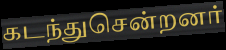
கடந்துசென்றனர்